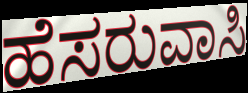
ಹೆಸರುವಾಸಿ